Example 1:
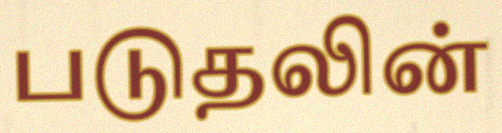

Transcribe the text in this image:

படுதலின்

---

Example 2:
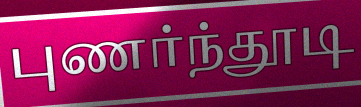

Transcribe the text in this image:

புணர்ந்தூடி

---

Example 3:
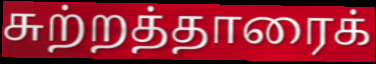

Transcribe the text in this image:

சுற்றத்தாரைக்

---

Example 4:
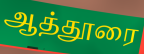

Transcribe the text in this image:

ஆத்தூரை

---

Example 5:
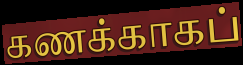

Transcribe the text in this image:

கணக்காகப்